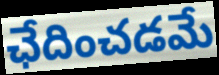
ఛేదించడమే